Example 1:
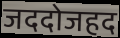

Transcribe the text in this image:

जददोजहद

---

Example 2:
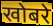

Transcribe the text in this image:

खोबरे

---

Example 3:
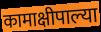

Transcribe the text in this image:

कामाक्षीपाल्या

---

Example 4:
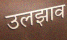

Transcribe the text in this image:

उलझाव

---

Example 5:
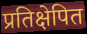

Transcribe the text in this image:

प्रतिक्षेपित